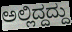
ಅಲ್ಲಿದ್ದದ್ದು